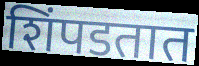
शिंपडतात